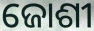
ଜୋଶୀ